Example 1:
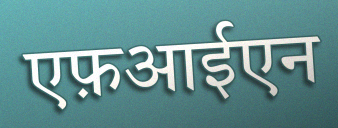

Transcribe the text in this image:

एफ़आईएन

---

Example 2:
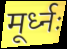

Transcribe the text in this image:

मूर्ध्नः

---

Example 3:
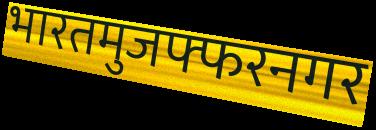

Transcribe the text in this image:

भारतमुजफ्फरनगर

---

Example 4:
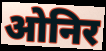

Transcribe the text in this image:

ओनिर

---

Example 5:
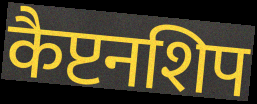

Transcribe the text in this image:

कैप्टनशिप